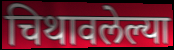
चिथावलेल्या